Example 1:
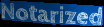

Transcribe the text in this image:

Notarized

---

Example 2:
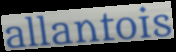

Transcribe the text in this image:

allantois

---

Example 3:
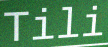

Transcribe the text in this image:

Tili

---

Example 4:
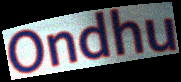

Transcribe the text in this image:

Ondhu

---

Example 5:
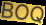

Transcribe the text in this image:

BOQ